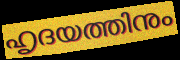
ഹൃദയത്തിനും